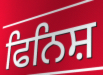
ਫਿਨਿਸ਼